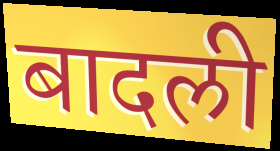
बादली